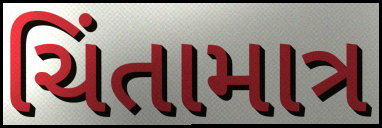
ચિંતામાત્ર